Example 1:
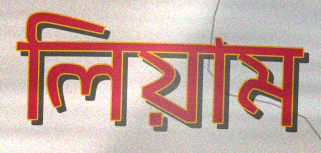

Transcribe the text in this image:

লিয়াম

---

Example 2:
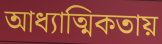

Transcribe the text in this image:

আধ্যাত্মিকতায়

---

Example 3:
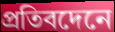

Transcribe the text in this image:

প্রতিবদেনে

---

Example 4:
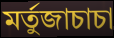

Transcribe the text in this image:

মর্তুজাচাচা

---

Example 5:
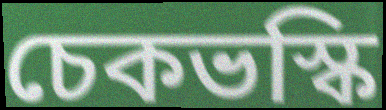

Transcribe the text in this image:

চেকভস্কি